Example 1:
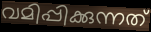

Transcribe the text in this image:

വമിപ്പിക്കുന്നത്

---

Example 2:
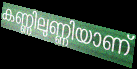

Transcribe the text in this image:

കണ്ണിലുണ്ണിയാണ്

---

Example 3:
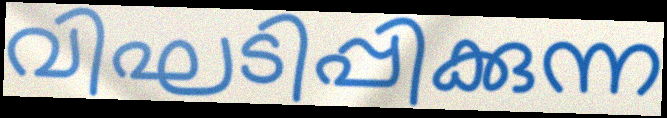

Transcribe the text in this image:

വിഘടിപ്പിക്കുന്ന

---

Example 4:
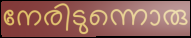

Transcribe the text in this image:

നേരിടുന്നൊരു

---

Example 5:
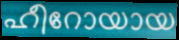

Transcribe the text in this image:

ഹീറോയായ